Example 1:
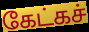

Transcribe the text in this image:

கேட்கச்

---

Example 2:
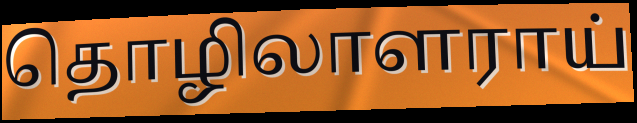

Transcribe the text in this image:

தொழிலாளராய்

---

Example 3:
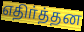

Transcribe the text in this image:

எதிர்த்தன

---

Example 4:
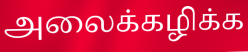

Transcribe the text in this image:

அலைக்கழிக்க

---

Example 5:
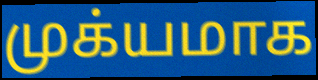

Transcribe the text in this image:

முக்யமாக